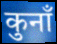
कुनाँ